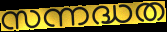
സന്നദ്ധത